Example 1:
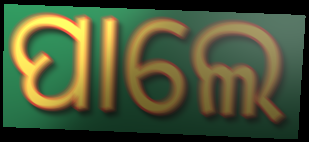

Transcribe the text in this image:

ପାଲେ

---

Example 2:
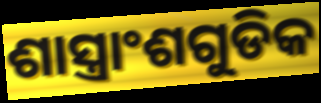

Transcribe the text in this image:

ଶାସ୍ତ୍ରାଂଶଗୁଡିକ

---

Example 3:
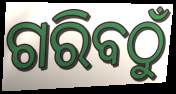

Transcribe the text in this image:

ଗରିବଠୁଁ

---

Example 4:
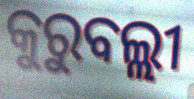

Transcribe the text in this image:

କୁରୁବଲ୍ଲୀ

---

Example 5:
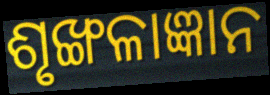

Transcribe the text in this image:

ଶୃଙ୍ଖଳାଜ୍ଞାନ